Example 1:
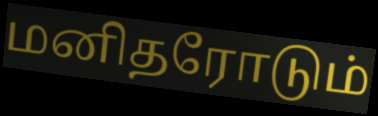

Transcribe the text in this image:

மனிதரோடும்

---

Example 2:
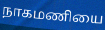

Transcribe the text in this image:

நாகமணியை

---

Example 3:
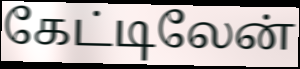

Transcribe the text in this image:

கேட்டிலேன்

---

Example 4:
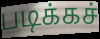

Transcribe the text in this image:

படிக்கச்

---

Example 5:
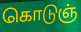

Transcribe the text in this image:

கொடுஞ்